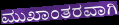
ಮುಖಾಂತರವಾಗಿ